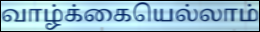
வாழ்க்கையெல்லாம்